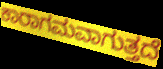
ಕಾರಾಗಮವಾಗುತ್ತದೆ